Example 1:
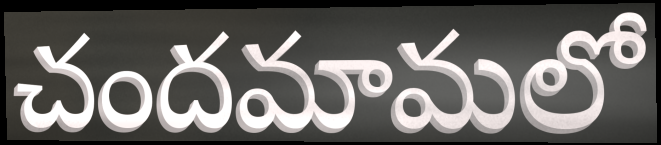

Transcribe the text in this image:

చందమామలో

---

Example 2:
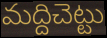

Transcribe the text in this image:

మద్దిచెట్టు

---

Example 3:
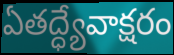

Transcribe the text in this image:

ఏతద్ధ్యేవాక్షరం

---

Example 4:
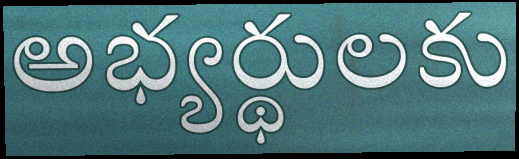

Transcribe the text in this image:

అభ్యర్థులకు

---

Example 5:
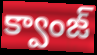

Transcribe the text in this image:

క్వాంజ్